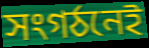
সংগঠনেই